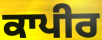
ਕਾਪੀਰ